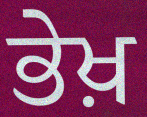
ਭੇਖ਼